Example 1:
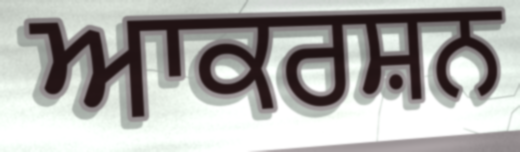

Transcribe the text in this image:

ਆਕਰਸ਼ਨ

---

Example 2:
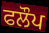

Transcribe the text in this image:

ਫਲੌਪ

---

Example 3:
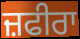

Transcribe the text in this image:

ਜ਼ਫੀਰਾ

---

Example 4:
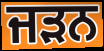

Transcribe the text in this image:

ਜੜਨ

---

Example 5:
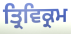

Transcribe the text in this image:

ਤ੍ਰਿਵਿਕ੍ਰਮ